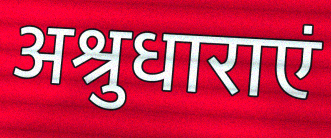
अश्रुधाराएं